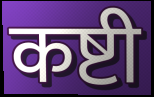
कष्टी